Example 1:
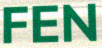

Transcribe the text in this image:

FEN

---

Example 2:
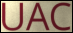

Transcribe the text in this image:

UAC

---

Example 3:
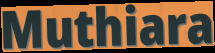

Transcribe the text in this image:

Muthiara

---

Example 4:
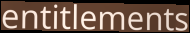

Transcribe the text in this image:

entitlements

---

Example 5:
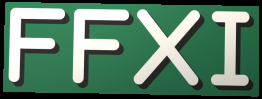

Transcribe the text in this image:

FFXI